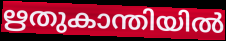
ഋതുകാന്തിയിൽ